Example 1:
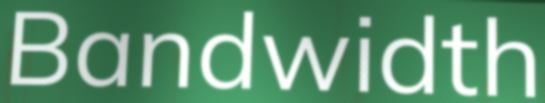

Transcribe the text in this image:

Bandwidth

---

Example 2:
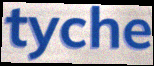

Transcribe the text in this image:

tyche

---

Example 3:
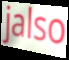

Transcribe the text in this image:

jalso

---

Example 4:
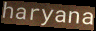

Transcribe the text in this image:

haryana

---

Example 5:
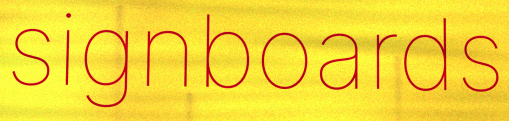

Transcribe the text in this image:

signboards